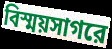
বিস্ময়সাগরে